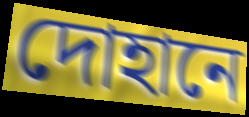
দোহানে